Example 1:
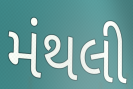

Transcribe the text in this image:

મંથલી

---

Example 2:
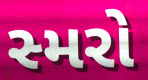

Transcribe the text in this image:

સ્મરો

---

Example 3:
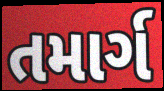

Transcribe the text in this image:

તમાર્ગ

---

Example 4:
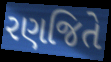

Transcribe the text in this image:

રણજિતે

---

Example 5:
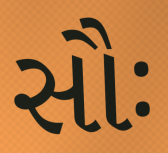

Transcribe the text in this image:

સૌઃ